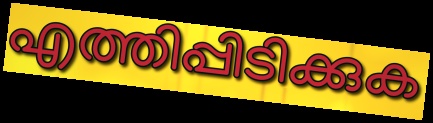
എത്തിപ്പിടിക്കുക